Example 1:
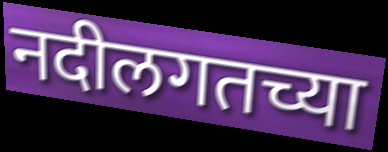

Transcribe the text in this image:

नदीलगतच्या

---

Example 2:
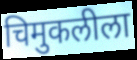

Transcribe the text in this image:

चिमुकलीला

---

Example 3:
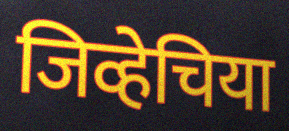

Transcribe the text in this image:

जिव्हेचिया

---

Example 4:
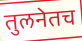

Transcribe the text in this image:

तुलनेतच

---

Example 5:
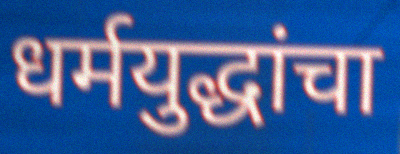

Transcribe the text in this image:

धर्मयुद्धांचा